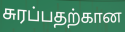
சுரப்பதற்கான